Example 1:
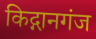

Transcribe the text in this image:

किद्गानगंज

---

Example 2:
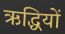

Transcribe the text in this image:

ऋद्धियों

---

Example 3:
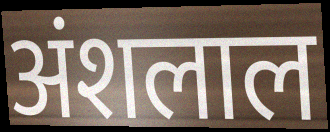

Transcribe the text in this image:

अंशलाल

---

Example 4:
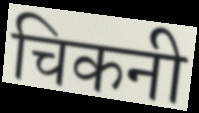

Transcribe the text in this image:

चिकनी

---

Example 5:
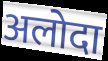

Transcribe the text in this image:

अलोदा